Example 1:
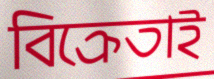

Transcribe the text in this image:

বিক্ৰেতাই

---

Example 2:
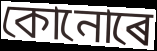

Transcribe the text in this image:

কোনোৰে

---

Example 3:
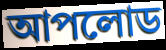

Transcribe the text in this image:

আপলোড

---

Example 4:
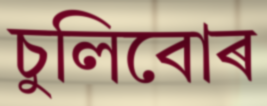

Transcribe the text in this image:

চুলিবোৰ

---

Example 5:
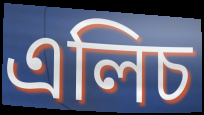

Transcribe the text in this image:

এলিচ